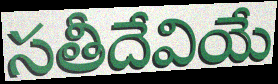
సతీదేవియే